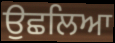
ਉਛਲਿਆ